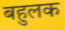
बहुलक